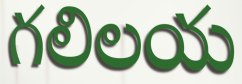
గలిలయ